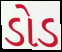
ડોડ